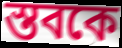
স্তবকে